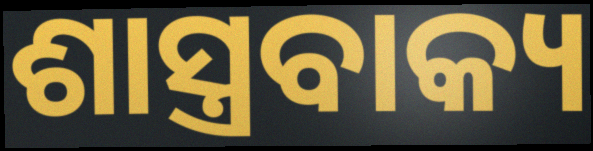
ଶାସ୍ତ୍ରବାକ୍ୟ